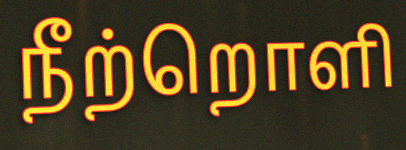
நீற்றொளி